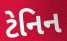
ટેનિન